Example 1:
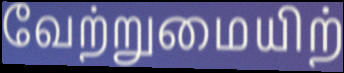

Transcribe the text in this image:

வேற்றுமையிற்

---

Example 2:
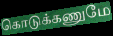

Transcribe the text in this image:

கொடுக்கணுமே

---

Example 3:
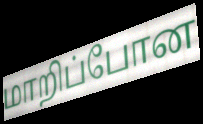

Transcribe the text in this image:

மாறிப்போன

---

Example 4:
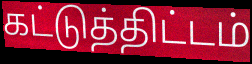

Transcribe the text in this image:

கட்டுத்திட்டம்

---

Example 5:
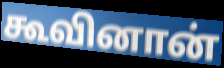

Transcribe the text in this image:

கூவினான்